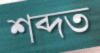
শব্দত